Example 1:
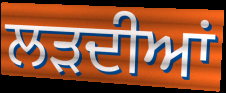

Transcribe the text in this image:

ਲੜਦੀਆਂ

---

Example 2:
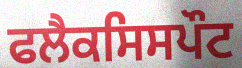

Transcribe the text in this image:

ਫਲੈਕਸਿਸਪੌਟ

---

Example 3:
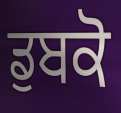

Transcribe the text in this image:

ਡੁਬਕੋ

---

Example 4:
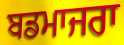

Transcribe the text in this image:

ਬਡਮਾਜਰਾ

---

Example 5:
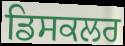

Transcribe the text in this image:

ਡਿਸਕਲਰ